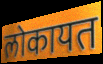
लोकायत